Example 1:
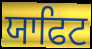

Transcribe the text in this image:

ਯਾਫਿਟ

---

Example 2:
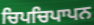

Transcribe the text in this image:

ਚਿਪਚਿਪਾਪਨ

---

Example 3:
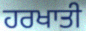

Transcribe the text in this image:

ਹਰਖਾਤੀ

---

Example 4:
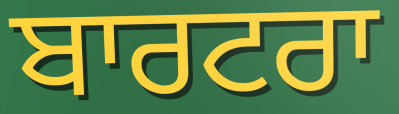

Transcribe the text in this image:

ਬਾਰਟਰਾ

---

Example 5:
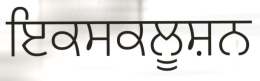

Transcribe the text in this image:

ਇਕਸਕਲੂਸ਼ਨ